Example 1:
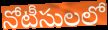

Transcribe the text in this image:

నోటీసులలో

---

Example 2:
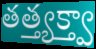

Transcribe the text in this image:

తత్త్యక్త్వా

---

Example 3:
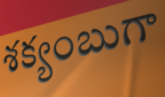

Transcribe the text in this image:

శక్యంబుగా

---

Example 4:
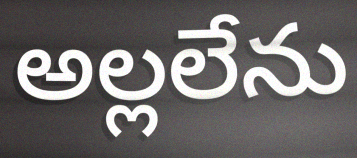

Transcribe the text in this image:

అల్లలేను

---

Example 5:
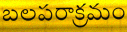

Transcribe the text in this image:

బలపరాక్రమం